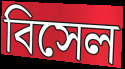
বিসেল